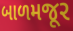
બાળમજૂર